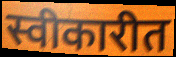
स्वीकारीत